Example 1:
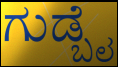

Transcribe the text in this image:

ಗುಡ್ಬೈ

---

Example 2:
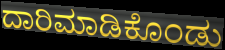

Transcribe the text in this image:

ದಾರಿಮಾಡಿಕೊಂಡು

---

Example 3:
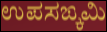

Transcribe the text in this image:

ಉಪಸಙ್ಕಮಿ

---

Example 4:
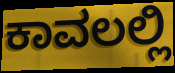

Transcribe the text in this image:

ಕಾವಲಲ್ಲಿ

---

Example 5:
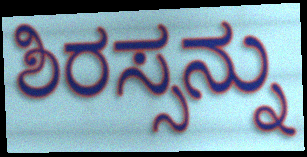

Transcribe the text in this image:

ಶಿರಸ್ಸನ್ನು